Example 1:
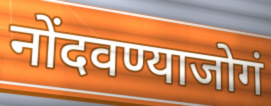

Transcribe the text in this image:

नोंदवण्याजोगं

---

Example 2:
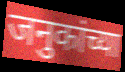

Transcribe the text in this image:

जनुकांच्या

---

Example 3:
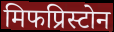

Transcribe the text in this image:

मिफप्रिस्टोन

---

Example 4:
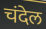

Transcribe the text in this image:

चंदेल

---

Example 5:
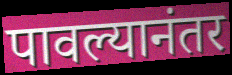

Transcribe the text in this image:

पावल्यानंतर